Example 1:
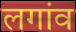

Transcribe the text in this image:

लगांव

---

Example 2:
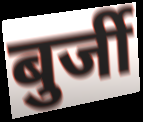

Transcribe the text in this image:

बुर्जी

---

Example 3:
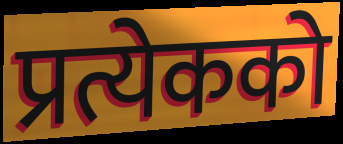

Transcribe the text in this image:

प्रत्येकको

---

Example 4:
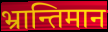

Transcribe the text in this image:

भ्रान्तिमान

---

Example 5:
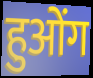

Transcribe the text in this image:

हुओंग